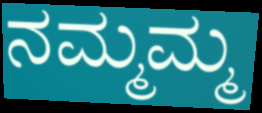
ನಮ್ಮಮ್ಮ